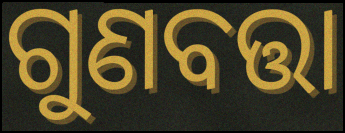
ଗୁଣବତ୍ତା